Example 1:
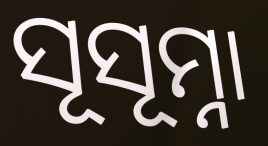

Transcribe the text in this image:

ସୂସୂମ୍ନା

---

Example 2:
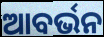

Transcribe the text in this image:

ଆବର୍ଭନ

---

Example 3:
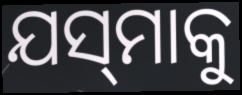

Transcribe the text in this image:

ଯସ୍‌ମାକୁ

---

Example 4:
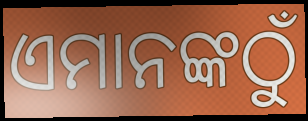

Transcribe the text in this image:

ଏମାନଙ୍କଠୁଁ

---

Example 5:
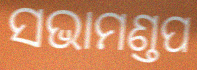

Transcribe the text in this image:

ସଭାମଣ୍ଡପ